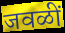
जवळीं